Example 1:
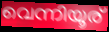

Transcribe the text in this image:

വെന്നിയൂര്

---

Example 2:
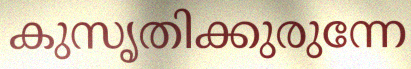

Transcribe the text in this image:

കുസൃതിക്കുരുന്നേ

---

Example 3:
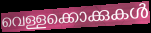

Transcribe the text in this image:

വെള്ളക്കൊക്കുകൾ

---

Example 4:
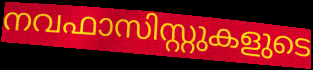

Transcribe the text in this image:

നവഫാസിസ്റ്റുകളുടെ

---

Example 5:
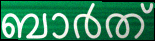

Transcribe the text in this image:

ബാർത്